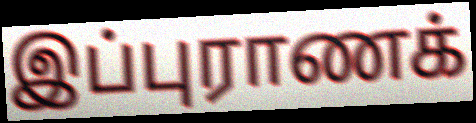
இப்புராணக்